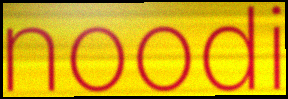
noodi